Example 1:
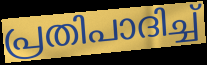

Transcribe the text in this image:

പ്രതിപാദിച്ച്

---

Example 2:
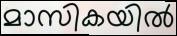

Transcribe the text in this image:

മാസികയിൽ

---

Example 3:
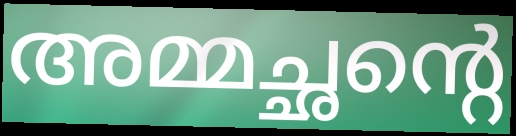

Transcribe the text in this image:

അമ്മച്ഛന്റെ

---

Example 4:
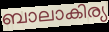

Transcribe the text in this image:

ബാലാകിര്യ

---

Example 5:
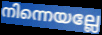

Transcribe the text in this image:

നിന്നെയല്ലേ